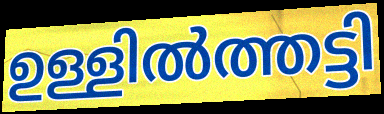
ഉള്ളിൽത്തട്ടി